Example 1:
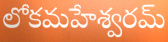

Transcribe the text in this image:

లోకమహేశ్వరమ్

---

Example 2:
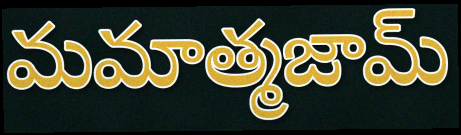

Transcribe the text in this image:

మమాత్మజామ్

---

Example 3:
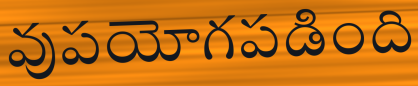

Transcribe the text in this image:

వుపయోగపడింది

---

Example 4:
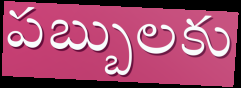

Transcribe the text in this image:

పబ్బులకు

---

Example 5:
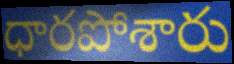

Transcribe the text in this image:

ధారపోశారు